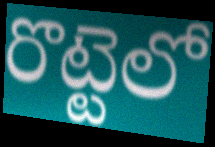
రొట్టెలో